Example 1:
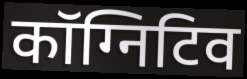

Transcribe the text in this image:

कॉग्निटिव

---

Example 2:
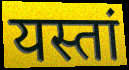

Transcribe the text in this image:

यस्तां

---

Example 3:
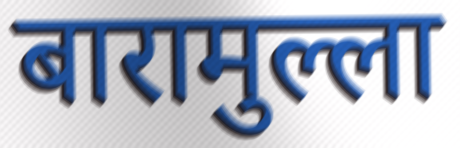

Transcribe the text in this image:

बारामुल्ला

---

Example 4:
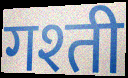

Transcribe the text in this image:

गश्‍ती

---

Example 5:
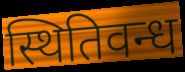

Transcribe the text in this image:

स्थितिवन्ध